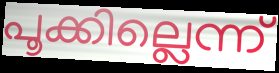
പൂക്കില്ലെന്ന്